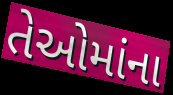
તેઓમાંના